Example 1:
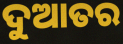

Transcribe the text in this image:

ଦୁଆତର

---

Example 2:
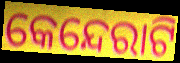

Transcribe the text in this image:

କେନ୍ଦେରାଟି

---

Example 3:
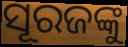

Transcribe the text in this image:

ସୂରଜଙ୍କୁ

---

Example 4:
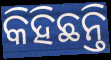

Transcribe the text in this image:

କିହିଛନ୍ତି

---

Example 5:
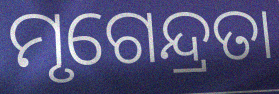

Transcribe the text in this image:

ମୃଗେନ୍ଦ୍ରତା